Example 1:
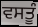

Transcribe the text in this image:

ਵਸਤੂੰ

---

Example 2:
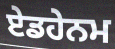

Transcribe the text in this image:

ਏਡਹੇਨਮ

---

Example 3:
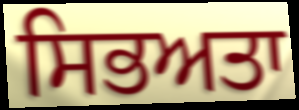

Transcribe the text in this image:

ਸਿਭਅਤਾ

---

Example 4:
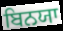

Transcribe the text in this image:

ਬਿਨਯਾ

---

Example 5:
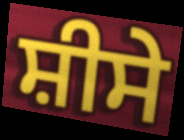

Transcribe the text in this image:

ਸ਼ੀਸੇ